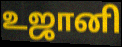
உஜானி